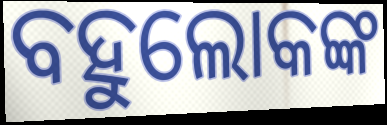
ବହୁଲୋକଙ୍କ